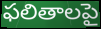
ఫలితాలపై